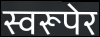
स्वरूपेर